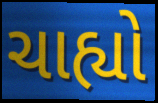
ચાહ્યો